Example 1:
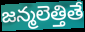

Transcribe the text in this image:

జన్మలెత్తితే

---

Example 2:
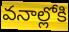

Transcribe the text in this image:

వనాల్లోకి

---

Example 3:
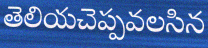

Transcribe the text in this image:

తెలియచెప్పవలసిన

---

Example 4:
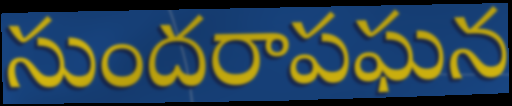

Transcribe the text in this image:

సుందరాపఘన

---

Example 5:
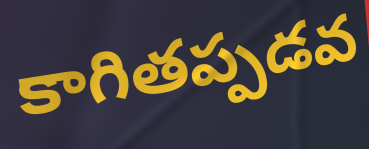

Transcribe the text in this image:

కాగితప్పడవ